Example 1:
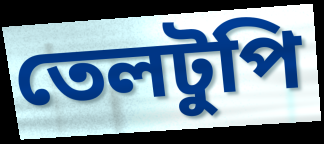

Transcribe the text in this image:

তেলটুপি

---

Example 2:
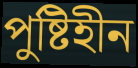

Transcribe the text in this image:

পুষ্টিহীন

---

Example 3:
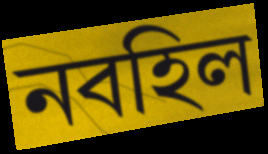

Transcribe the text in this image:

নবহিল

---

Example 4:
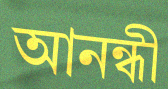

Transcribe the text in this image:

আনন্ধী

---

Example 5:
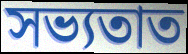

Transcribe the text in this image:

সভ্যতাত